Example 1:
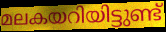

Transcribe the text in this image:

മലകയറിയിട്ടുണ്ട്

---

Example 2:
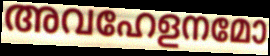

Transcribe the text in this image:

അവഹേളനമോ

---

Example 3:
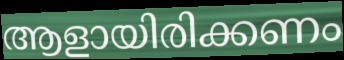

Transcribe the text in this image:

ആളായിരിക്കണം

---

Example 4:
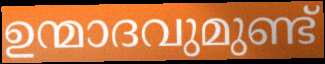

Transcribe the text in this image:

ഉന്മാദവുമുണ്ട്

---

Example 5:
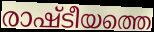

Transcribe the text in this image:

രാഷ്ടീയത്തെ